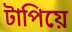
টাপিয়ে